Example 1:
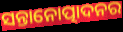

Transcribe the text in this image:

ସନ୍ତାନୋତ୍ପାଦନର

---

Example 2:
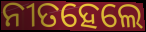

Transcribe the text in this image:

ନୀତହେଲେ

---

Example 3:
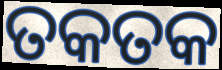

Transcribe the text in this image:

ତକତକ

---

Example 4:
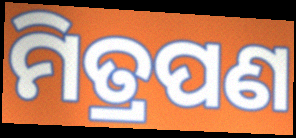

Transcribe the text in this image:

ମିତ୍ରପଣ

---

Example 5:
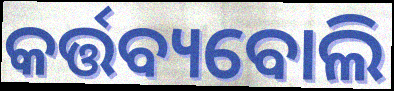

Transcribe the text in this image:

କର୍ତ୍ତବ୍ୟବୋଲି